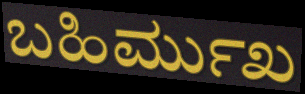
ಬಹಿರ್ಮುಖ